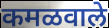
कमळवाले